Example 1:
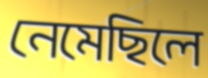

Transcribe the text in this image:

নেমেছিলে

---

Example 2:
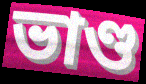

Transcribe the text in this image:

ভাণ্ড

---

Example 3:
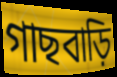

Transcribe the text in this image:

গাছবাড়ি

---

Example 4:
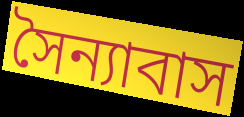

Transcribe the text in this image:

সৈন্যাবাস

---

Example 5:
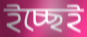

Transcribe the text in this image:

ইচ্ছেই